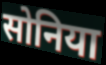
सोनिया